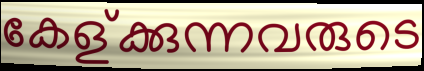
കേള്ക്കുന്നവരുടെ